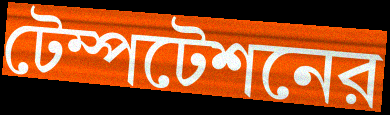
টেম্পটেশনের